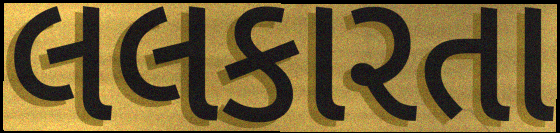
લલકારતા